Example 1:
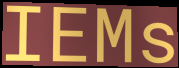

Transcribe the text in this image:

IEMs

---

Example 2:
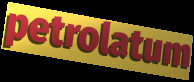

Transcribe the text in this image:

petrolatum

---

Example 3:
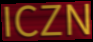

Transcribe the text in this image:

ICZN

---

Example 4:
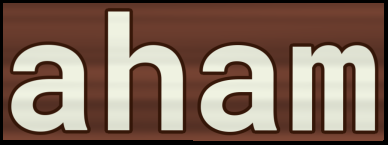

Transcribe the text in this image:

aham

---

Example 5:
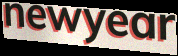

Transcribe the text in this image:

newyear